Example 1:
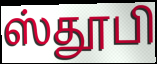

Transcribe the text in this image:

ஸ்தூபி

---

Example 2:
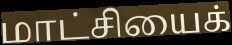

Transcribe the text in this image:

மாட்சியைக்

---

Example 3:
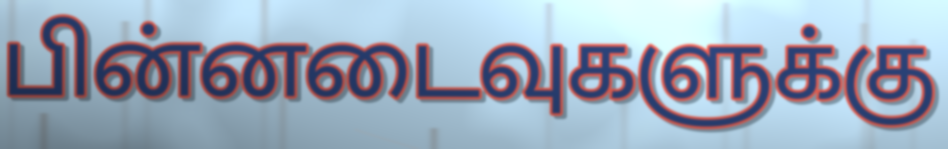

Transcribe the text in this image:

பின்னடைவுகளுக்கு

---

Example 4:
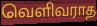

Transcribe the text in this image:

வெளிவராத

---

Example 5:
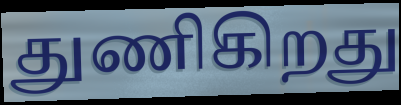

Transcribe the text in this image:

துணிகிறது